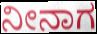
ನೀನಾಗ